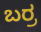
ಬರ್ರ